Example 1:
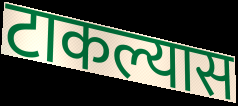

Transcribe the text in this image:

टाकल्यास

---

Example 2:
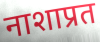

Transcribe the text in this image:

नाशाप्रत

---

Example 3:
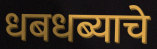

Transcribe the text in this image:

धबधब्याचे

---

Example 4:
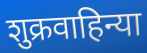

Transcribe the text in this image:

शुक्रवाहिन्या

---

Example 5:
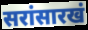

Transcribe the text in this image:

सरांसारखं